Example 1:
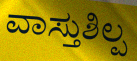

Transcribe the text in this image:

ವಾಸ್ತುಶಿಲ್ಪ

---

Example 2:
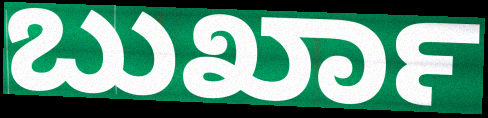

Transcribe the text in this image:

ಬುರ್ಖಾ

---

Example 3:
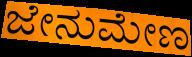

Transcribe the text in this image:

ಜೇನುಮೇಣ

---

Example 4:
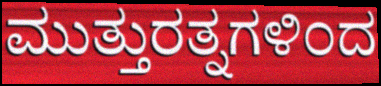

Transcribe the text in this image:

ಮುತ್ತುರತ್ನಗಳಿಂದ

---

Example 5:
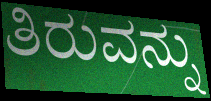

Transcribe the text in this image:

ತಿರುವನ್ನು